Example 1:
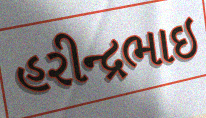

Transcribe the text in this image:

હરીન્દ્રભાઇ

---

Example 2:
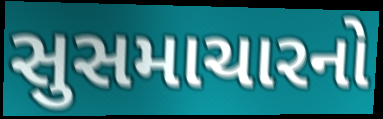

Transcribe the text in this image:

સુસમાચારનો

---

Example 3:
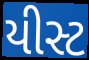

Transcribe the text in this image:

યીસ્ટ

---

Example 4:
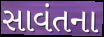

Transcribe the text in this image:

સાવંતના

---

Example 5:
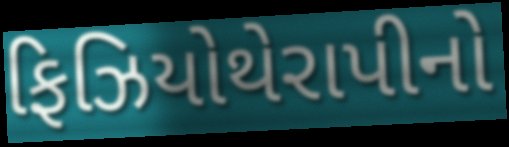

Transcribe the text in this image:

ફિઝિયોથેરાપીનો